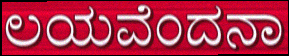
ಲಯವೆಂದನಾ